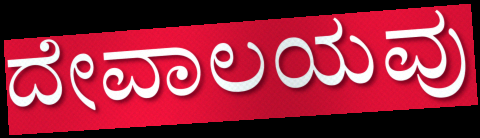
ದೇವಾಲಯವು